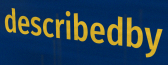
describedby